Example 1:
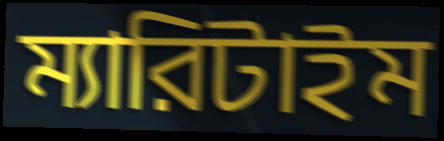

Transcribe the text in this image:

ম্যারিটাইম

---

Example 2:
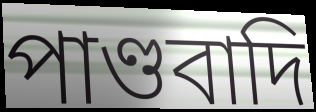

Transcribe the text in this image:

পাণ্ডবাদি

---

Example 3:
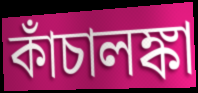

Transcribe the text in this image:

কাঁচালঙ্কা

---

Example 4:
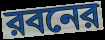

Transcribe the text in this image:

রবনের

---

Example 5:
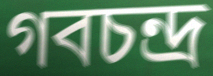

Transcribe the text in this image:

গবচন্দ্র